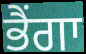
ਭੈਂਗਾ